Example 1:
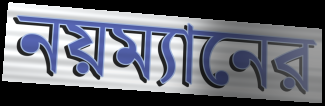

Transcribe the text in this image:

নয়ম্যানের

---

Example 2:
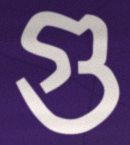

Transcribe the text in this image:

গু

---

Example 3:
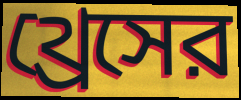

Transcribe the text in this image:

থ্রেসের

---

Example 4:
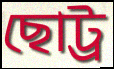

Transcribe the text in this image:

ছোট্র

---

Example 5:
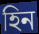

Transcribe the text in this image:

হিন